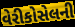
વેરીકોસેલની